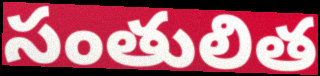
సంతులిత